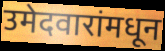
उमेदवारांमधून